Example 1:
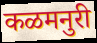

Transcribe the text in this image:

कळमनुरी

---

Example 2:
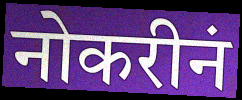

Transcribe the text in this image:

नोकरीनं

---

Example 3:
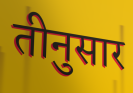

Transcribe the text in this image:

तीनुसार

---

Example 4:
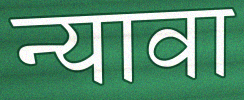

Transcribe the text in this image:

न्यावा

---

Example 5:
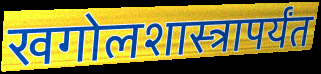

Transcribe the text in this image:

खगोलशास्त्रापर्यंत